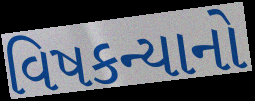
વિષકન્યાનો